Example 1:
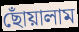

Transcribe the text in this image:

ছোঁয়ালাম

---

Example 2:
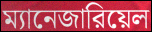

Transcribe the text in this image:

ম্যানেজারিয়েল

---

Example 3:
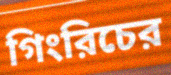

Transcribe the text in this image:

গিংরিচের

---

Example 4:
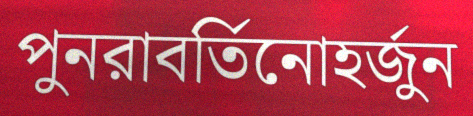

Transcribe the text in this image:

পুনরাবর্তিনোহর্জুন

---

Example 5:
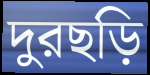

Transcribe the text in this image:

দুরছড়ি